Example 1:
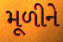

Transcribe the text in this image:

મૂળીને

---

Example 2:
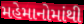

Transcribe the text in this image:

મહેમાનોમાંથી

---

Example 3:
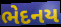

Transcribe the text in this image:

ભેદનય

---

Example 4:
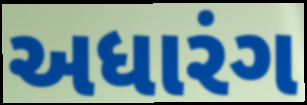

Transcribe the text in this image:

અધારંગ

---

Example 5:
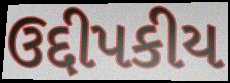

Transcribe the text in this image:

ઉદ્દીપકીય